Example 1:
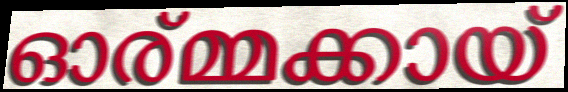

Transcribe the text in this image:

ഓര്മ്മക്കായ്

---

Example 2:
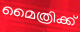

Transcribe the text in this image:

മൈത്രിക്ക്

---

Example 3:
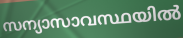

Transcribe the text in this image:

സന്യാസാവസ്ഥയിൽ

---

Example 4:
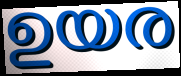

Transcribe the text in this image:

ഉയര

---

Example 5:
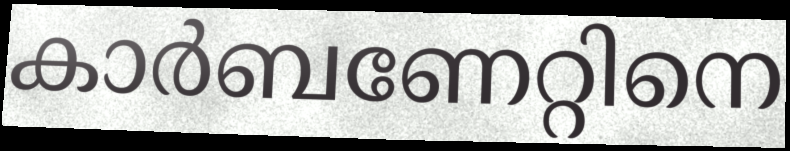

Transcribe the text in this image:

കാർബണേറ്റിനെ